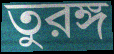
তুরঙ্গ